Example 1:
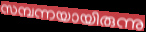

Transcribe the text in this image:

സമ്പന്നയായിരുന്നു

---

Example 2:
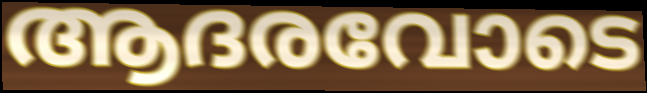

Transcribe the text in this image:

ആദരവോടെ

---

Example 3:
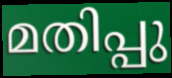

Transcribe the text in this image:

മതിപ്പു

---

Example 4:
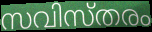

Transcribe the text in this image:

സവിസ്തരം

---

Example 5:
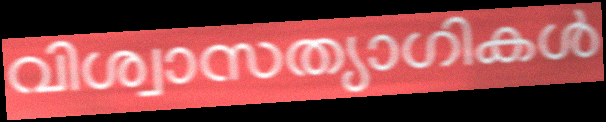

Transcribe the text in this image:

വിശ്വാസത്യാഗികൾ